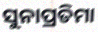
ସୁନାପ୍ରତିମା